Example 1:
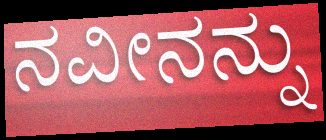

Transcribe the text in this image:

ನವೀನನ್ನು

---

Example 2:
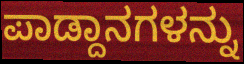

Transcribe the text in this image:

ಪಾಡ್ದಾನಗಳನ್ನು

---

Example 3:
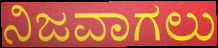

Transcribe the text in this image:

ನಿಜವಾಗಲು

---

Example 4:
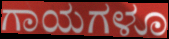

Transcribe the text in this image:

ಗಾಯಗಳೂ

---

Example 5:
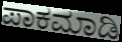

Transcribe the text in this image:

ಪಾಕಮಾಡಿ